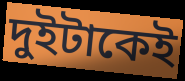
দুইটাকেই